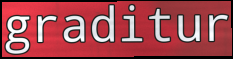
graditur